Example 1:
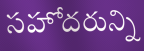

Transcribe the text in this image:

సహోదరున్ని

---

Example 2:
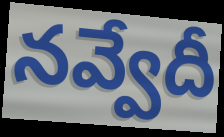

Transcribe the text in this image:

నవ్వేదీ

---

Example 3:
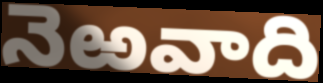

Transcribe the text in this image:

నెఱవాది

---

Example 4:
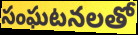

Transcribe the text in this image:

సంఘటనలతో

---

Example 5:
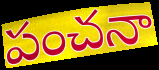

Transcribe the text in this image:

పంచనా